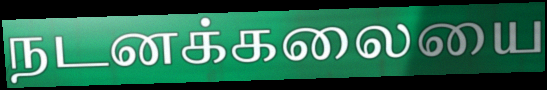
நடனக்கலையை